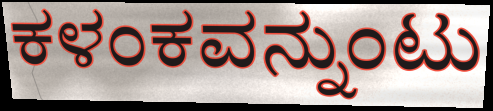
ಕಳಂಕವನ್ನುಂಟು